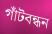
গাঁটবন্ধন